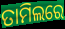
ତାମିଲରେ